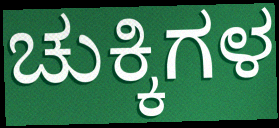
ಚುಕ್ಕಿಗಳ